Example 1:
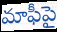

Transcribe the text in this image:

మాఫీపై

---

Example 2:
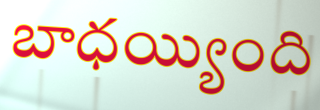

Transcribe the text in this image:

బాధయ్యింది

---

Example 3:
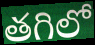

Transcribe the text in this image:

తగిలో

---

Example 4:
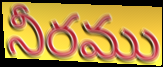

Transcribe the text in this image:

నీరము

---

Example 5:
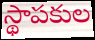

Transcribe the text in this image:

స్థాపకుల